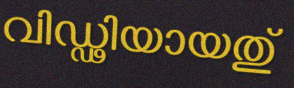
വിഡ്ഢിയായതു്